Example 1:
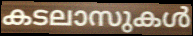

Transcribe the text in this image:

കടലാസുകൾ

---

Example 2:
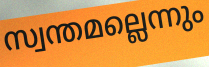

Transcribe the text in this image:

സ്വന്തമല്ലെന്നും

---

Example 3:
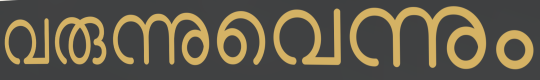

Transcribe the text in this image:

വരുന്നുവെന്നും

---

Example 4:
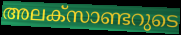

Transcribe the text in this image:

അലക്സാണ്ടറുടെ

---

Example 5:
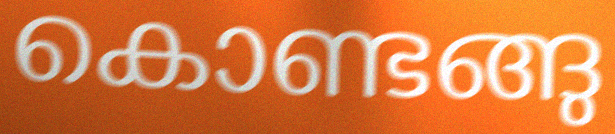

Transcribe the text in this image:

കൊണ്ടങ്ങു